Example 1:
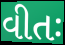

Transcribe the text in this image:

વીતઃ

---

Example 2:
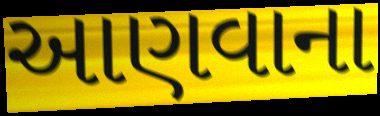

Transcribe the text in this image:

આણવાના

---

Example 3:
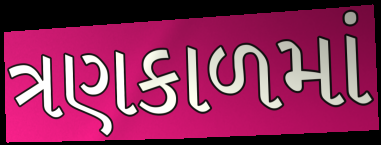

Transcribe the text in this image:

ત્રણકાળમાં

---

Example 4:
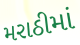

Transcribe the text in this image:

મરાઠીમાં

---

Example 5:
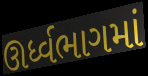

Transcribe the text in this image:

ઊર્ધ્વભાગમાં